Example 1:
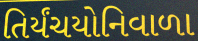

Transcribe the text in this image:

તિર્યંચયોનિવાળા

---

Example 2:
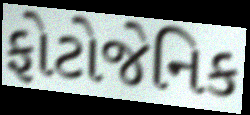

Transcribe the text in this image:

ફોટોજેનિક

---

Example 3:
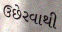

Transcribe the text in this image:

ઉછેરવાથી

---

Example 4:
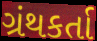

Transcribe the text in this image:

ગ્રંથકર્તા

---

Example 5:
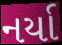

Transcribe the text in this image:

નર્યા